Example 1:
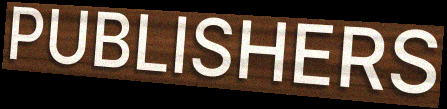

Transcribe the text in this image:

PUBLISHERS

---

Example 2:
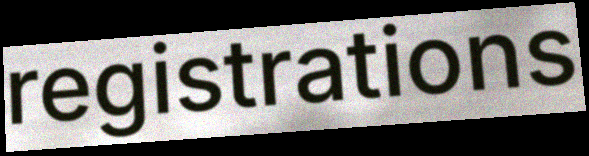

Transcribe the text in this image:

registrations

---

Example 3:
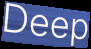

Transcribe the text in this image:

Deep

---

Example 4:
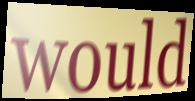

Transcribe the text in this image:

would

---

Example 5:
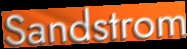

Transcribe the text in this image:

Sandstrom